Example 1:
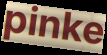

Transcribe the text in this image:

pinke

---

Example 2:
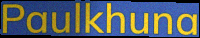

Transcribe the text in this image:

Paulkhuna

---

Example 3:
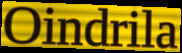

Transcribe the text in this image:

Oindrila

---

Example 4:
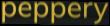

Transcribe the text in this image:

peppery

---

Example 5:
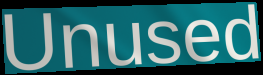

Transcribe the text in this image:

Unused